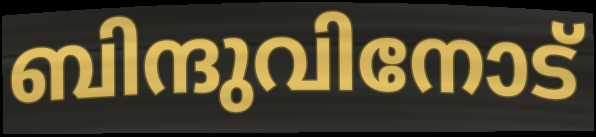
ബിന്ദുവിനോട്